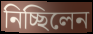
নিচ্ছিলেন